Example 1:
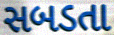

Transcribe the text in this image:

સબડતા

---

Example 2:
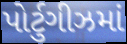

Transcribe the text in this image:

પોર્ટુગીઝમાં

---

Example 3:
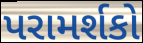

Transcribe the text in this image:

પરામર્શકો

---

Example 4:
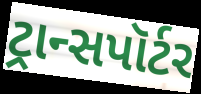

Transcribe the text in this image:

ટ્રાન્સપૉર્ટર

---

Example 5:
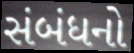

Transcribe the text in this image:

સંબંધનો